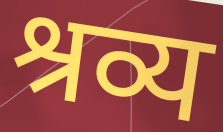
श्रव्य